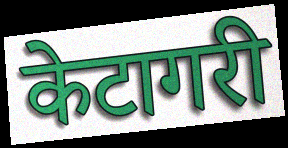
केटागरी